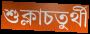
শুক্লাচতুৰ্থী